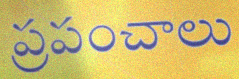
ప్రపంచాలు